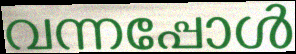
വന്നപ്പോൾ